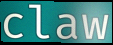
claw